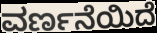
ವರ್ಣನೆಯಿದೆ